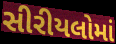
સીરીયલોમાં